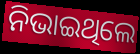
ନିଭାଇଥିଲେ